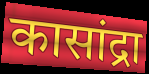
कासांद्रा